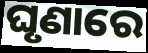
ଘୃଣାରେ